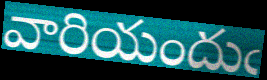
వారియందుఁ